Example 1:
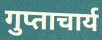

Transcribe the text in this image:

गुप्ताचार्य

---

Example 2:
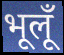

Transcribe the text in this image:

भूलूँ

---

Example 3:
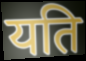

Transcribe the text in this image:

यति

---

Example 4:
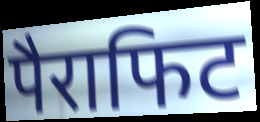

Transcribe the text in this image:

पैराफिट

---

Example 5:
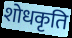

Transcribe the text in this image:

शोधकृति